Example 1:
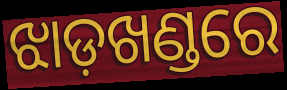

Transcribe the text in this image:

ଝାଡ଼ଖଣ୍ଡରେ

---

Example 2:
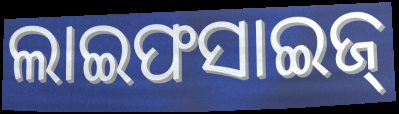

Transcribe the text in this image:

ଲାଇଫସାଇଜ୍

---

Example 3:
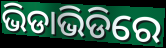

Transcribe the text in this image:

ଭିଡାଭିଡିରେ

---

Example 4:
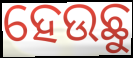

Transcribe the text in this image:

ହେଉଛୁ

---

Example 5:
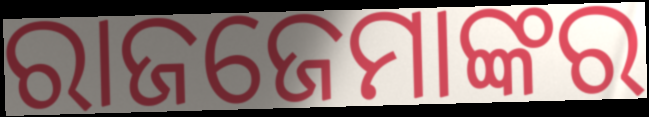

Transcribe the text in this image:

ରାଜଜେମାଙ୍କର